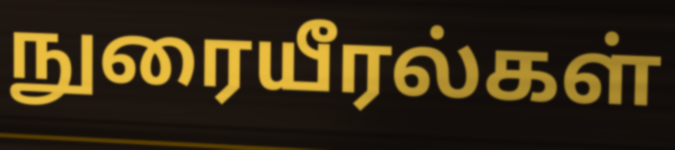
நுரையீரல்கள்